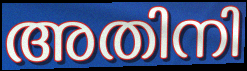
അതിനി